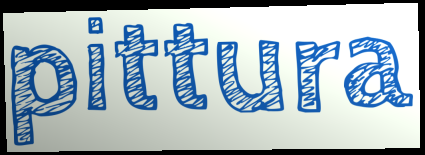
pittura